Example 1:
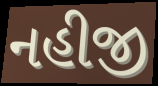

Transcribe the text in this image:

નહીજી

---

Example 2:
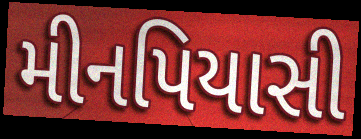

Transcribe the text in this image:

મીનપિયાસી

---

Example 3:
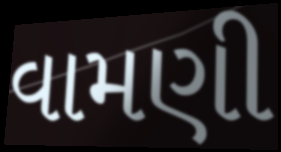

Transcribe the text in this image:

વામણી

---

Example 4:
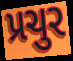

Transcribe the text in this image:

પ્રચુર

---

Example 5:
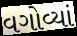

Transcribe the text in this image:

વગોવ્યાં